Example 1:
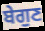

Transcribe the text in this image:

ਬੇਗੁਣ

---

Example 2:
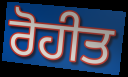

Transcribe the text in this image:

ਰੋਹੀਤ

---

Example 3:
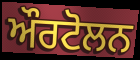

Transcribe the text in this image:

ਔਰਟੋਲਨ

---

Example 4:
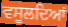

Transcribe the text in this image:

ਵਸੂਲਦਿਆਂ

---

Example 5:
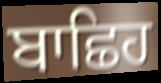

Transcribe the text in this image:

ਬਾਛਿਹ